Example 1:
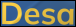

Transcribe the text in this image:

Desa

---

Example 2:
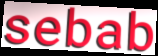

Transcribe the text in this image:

sebab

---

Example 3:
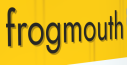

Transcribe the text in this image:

frogmouth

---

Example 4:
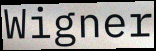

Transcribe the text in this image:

Wigner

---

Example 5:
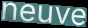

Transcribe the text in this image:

neuve